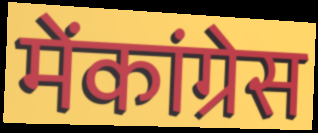
मेंकांग्रेस